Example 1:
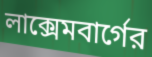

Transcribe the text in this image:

লাক্সেমবার্গের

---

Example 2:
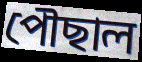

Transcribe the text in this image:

পৌছাল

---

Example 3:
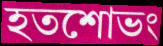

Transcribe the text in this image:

হতশোভং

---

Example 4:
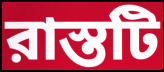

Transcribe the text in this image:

রাস্তটি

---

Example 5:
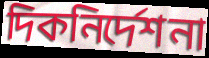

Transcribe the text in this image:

দিকনির্দেশনা